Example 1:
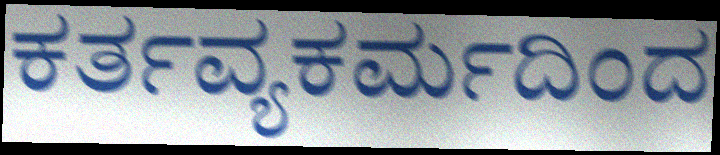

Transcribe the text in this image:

ಕರ್ತವ್ಯಕರ್ಮದಿಂದ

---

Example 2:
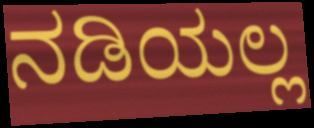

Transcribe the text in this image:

ನಡಿಯಲ್ಲ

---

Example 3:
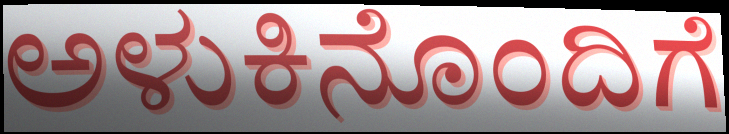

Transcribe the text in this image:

ಅಳುಕಿನೊಂದಿಗೆ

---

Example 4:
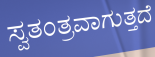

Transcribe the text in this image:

ಸ್ವತಂತ್ರವಾಗುತ್ತದೆ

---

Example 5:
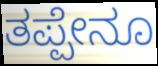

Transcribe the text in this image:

ತಪ್ಪೇನೂ